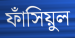
ফাঁসিয়ুল